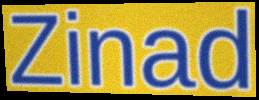
Zinad